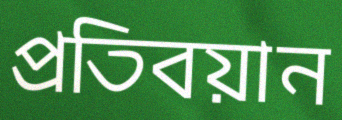
প্রতিবয়ান